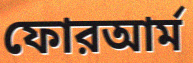
ফোরআর্ম